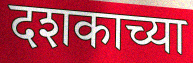
दशकाच्या